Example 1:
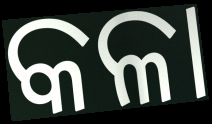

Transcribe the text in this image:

କଳା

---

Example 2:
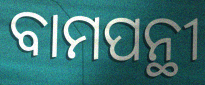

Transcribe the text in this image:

ବାମପନ୍ଥୀ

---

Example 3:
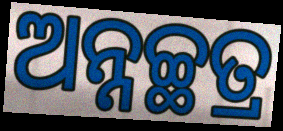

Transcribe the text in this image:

ଅନ୍ନଚ୍ଛତ୍ର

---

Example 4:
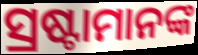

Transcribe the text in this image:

ସ୍ରଷ୍ଟାମାନଙ୍କ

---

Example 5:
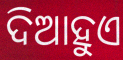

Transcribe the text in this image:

ଦିଆହୁଏ